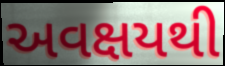
અવક્ષયથી